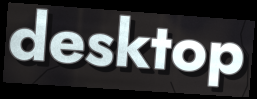
desktop